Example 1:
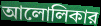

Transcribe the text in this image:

আলোলিকার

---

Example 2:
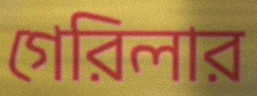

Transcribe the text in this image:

গেরিলার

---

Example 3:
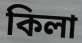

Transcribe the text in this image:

কিলা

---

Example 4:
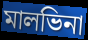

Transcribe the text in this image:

মালভিনা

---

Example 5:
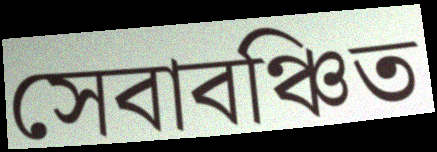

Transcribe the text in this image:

সেবাবঞ্চিত